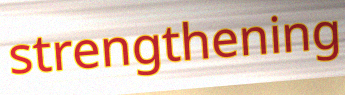
strengthening